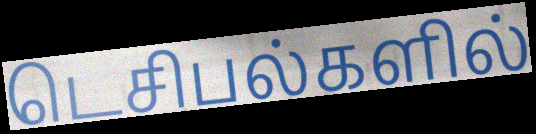
டெசிபல்களில்